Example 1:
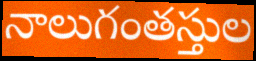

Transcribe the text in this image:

నాలుగంతస్తుల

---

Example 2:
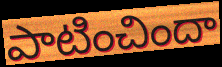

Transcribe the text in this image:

పాటించిందా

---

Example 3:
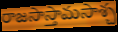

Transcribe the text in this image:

రాజసాస్తామసాశ్చ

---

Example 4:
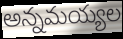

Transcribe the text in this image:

అన్నమయ్యల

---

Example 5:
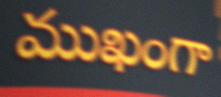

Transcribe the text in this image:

ముఖంగా